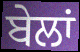
ਬੇਲਾਂ